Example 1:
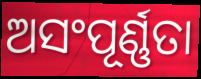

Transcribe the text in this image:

ଅସଂପୂର୍ଣ୍ଣତା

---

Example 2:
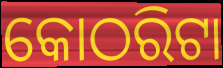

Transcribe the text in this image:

କୋଠରିଟା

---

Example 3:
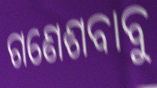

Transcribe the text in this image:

ଗଣେଶବାବୁ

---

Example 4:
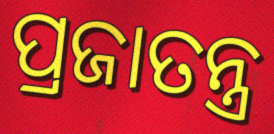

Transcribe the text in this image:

ପ୍ରଜାତନ୍ତ୍ର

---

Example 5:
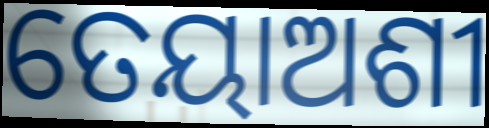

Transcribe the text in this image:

ତେୟାଅଶୀ